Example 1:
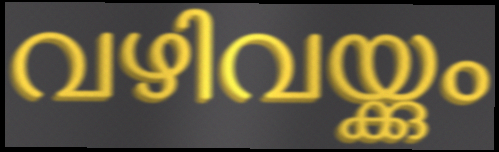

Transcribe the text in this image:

വഴിവയ്ക്കും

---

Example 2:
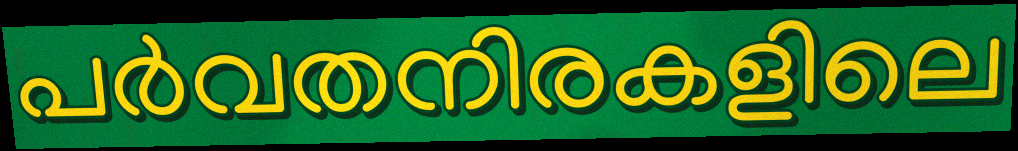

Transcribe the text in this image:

പർവതനിരകളിലെ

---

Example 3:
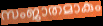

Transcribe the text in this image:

സംജാതമാകും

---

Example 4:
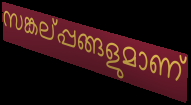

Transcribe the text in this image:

സങ്കല്പ്പങ്ങളുമാണ്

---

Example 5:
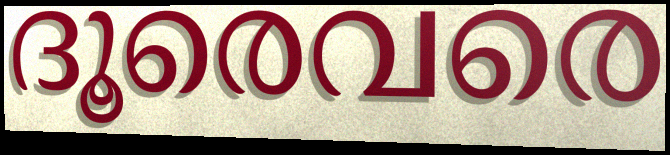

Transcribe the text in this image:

ദൂരെവരെ